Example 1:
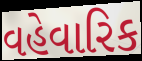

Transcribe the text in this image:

વહેવારિક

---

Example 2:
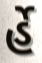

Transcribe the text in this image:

ર્હે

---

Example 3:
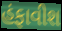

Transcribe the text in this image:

હંફાવીશ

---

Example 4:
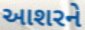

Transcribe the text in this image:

આશરને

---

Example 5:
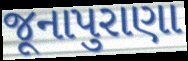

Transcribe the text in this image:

જૂનાપુરાણા